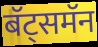
बॅट्समॅन